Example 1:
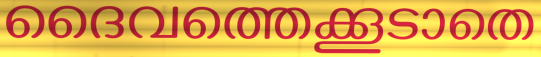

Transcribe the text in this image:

ദൈവത്തെക്കൂടാതെ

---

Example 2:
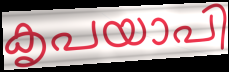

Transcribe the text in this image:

കൃപയാപി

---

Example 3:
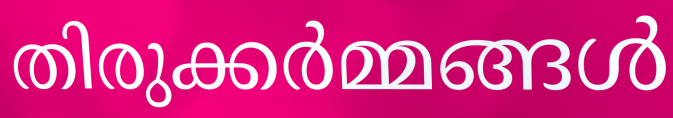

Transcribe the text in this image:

തിരുക്കർമ്മങ്ങൾ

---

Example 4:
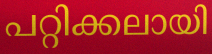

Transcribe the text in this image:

പറ്റിക്കലായി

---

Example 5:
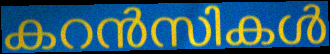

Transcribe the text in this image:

കറൻസികൾ